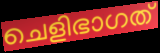
ചെളിഭാഗത്